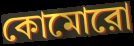
কোমোরো